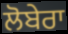
ਲੋਬੇਰਾ